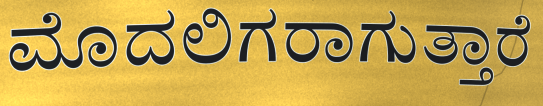
ಮೊದಲಿಗರಾಗುತ್ತಾರೆ